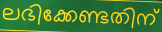
ലഭിക്കേണ്ടതിന്